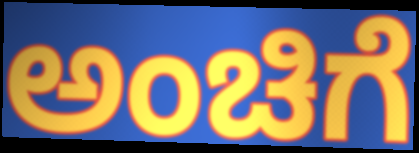
ಅಂಚಿಗೆ